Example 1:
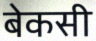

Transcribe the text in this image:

बेकसी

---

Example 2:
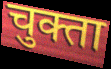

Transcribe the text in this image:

चुक्ता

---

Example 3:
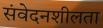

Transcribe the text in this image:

संवेदनशीलता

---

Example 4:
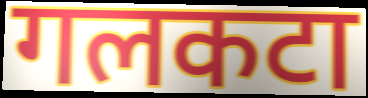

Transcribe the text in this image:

गलकटा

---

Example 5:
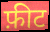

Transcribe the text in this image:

फ़ीट